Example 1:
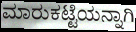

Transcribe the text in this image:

ಮಾರುಕಟ್ಟೆಯನ್ನಾಗಿ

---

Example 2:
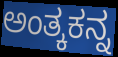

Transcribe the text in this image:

ಅಂತ್ಕಕನ್ನ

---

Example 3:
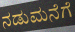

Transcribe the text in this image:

ನಡುಮನೆಗೆ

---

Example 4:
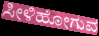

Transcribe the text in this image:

ಸೀಳಿಹೋಗುವ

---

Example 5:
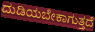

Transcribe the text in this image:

ದುಡಿಯಬೇಕಾಗುತ್ತದೆ